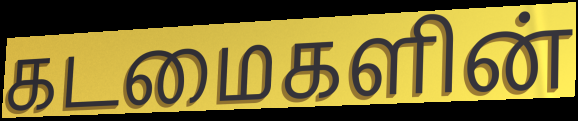
கடமைகளின்